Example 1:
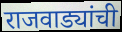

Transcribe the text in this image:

राजवाड्यांची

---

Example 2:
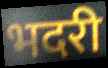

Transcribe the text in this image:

भदरी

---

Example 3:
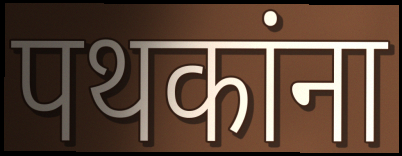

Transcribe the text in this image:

पथकांना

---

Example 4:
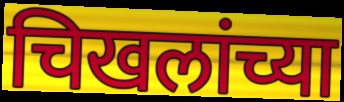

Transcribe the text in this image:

चिखलांच्या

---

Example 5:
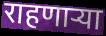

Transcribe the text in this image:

राहणाऱ्या